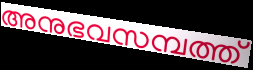
അനുഭവസമ്പത്ത്